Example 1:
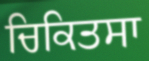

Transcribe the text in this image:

ਚਿਕਿਤਸਾ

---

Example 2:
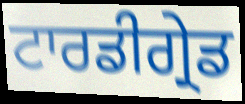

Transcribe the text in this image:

ਟਾਰਡੀਗ੍ਰੇਡ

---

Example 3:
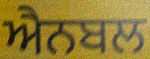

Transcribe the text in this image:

ਐਨਬਲ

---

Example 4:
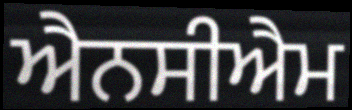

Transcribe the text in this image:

ਐਨਸੀਐਮ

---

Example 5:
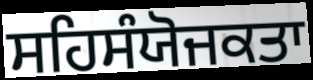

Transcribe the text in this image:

ਸਹਿਸੰਯੋਜਕਤਾ